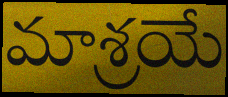
మాశ్రయే